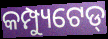
କମ୍ପ୍ୟୁଟେଡ୍